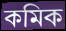
কমিক